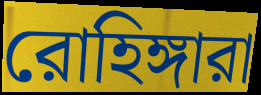
রোহিঙ্গারা